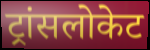
ट्रांसलोकेट